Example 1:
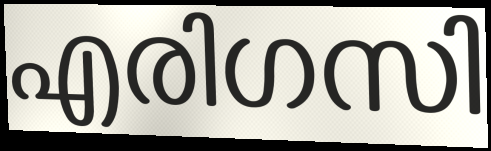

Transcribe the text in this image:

എരിഗസി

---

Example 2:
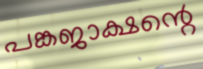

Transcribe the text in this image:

പങ്കജാക്ഷന്റെ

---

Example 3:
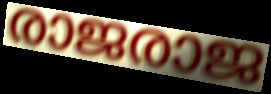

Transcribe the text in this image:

രാജരാജ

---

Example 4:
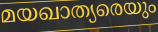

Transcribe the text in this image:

മയഖാത്യരെയും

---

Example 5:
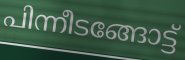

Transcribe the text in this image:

പിന്നീടങ്ങോട്ട്